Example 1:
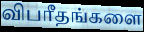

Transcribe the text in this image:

விபரீதங்களை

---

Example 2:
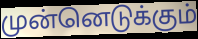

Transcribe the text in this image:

முன்னெடுக்கும்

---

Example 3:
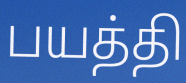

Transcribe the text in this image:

பயத்தி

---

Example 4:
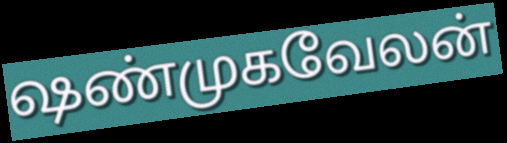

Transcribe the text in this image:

ஷண்முகவேலன்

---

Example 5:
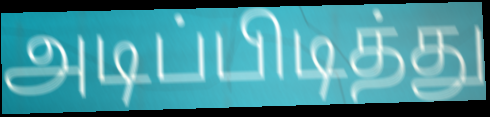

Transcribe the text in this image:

அடிப்பிடித்து